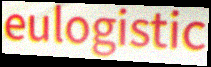
eulogistic